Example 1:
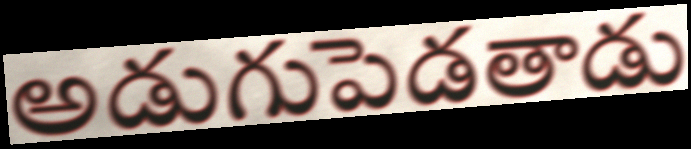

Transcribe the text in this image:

అడుగుపెడతాడు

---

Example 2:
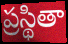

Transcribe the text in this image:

ప్రస్థితా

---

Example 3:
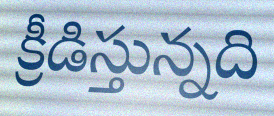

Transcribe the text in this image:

క్రీడిస్తున్నది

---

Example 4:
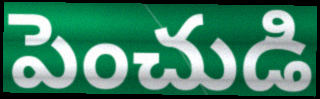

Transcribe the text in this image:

పెంచుడి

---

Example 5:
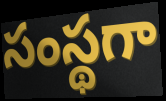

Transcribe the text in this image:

సంస్థగా